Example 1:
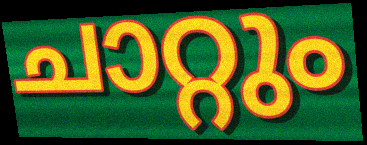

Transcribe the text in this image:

ചാറ്റും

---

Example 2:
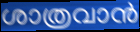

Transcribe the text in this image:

ശാത്രവാൻ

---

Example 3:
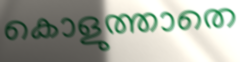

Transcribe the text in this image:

കൊളുത്താതെ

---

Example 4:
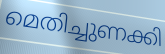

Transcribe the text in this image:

മെതിച്ചുണക്കി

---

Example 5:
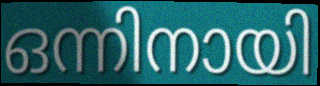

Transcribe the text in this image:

ഒന്നിനായി